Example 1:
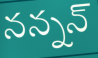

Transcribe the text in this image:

నన్నన్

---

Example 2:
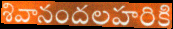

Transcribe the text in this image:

శివానందలహరికి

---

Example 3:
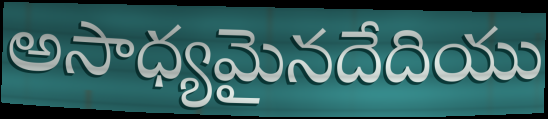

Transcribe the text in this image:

అసాధ్యమైనదేదియు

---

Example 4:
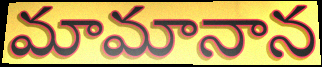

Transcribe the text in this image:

మామానాన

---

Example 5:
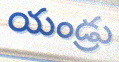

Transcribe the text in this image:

యండ్రు